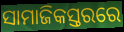
ସାମାଜିକସ୍ତରରେ